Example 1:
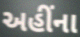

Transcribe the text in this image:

અહીંના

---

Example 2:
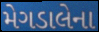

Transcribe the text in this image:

મેગડાલેના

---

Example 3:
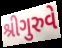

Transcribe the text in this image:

શ્રીગુરુવે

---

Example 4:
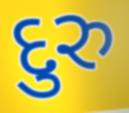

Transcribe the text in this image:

દુરુ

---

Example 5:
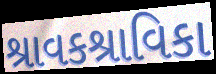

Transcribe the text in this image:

શ્રાવકશ્રાવિકા